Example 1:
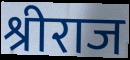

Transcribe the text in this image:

श्रीराज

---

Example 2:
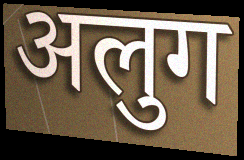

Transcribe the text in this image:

अलुग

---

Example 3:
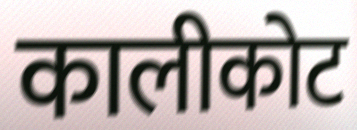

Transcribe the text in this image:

कालीकोट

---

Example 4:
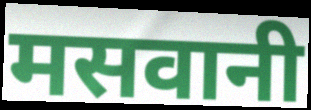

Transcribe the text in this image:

मसवानी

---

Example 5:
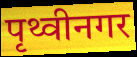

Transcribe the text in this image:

पृथ्वीनगर